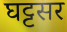
घट्टसर